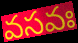
వసవః